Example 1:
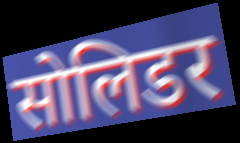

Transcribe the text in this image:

सोलिडर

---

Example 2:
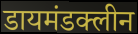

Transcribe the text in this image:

डायमंडक्लीन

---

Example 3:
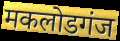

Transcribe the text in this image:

मकलोडगंज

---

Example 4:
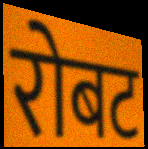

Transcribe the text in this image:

रोबट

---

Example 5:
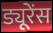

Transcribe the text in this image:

ड्यूरेंस